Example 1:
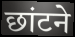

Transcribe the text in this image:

छांटने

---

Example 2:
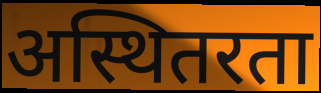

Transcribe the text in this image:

अस्थितरता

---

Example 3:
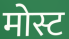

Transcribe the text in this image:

मोस्ट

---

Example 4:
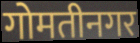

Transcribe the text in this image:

गोमतीनगर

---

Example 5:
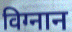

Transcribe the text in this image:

विग्नान